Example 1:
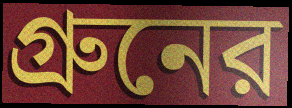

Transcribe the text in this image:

গ্রুনের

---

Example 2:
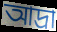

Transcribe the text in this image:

আদ্রা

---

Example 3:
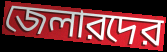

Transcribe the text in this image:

জেলারদের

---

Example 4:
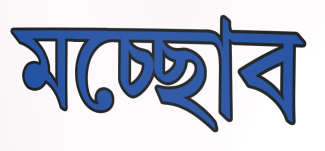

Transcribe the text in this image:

মচ্ছোব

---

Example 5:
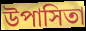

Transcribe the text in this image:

উপাসিতা